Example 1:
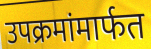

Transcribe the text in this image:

उपक्रमांमार्फत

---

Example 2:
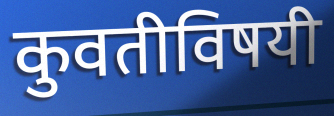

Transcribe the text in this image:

कुवतीविषयी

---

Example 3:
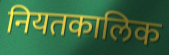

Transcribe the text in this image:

नियतकालिक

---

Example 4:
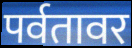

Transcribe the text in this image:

पर्वतावर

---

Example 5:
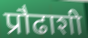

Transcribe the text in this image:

प्रौढाशी